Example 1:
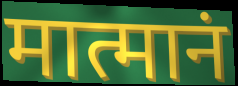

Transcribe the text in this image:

मात्मानं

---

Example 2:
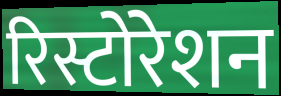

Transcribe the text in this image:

रिस्टोरेशन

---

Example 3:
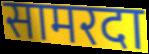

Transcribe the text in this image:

सामरदा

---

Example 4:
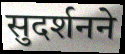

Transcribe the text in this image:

सुदर्शनने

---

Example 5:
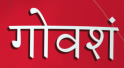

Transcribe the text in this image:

गोवशं